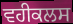
ਵਹੀਕਲਸ